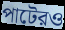
পাটেরও